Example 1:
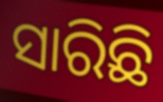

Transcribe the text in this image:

ସାରିଛି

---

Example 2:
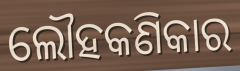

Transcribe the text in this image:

ଲୌହକଣିକାର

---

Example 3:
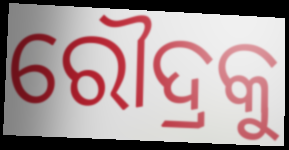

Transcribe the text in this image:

ରୌଦ୍ରକୁ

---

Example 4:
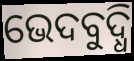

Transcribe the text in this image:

ଭେଦବୁଦ୍ଧି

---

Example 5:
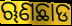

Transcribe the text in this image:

ୠଣଛାଡ